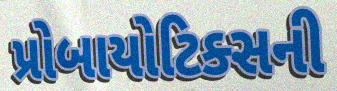
પ્રોબાયોટિક્સની